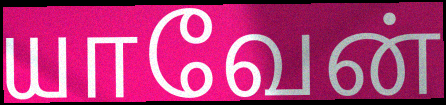
யாவேன்